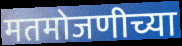
मतमोजणीच्या